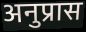
अनुप्रास